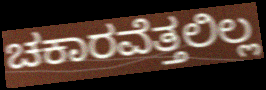
ಚಕಾರವೆತ್ತಲಿಲ್ಲ